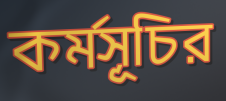
কর্মসূচির